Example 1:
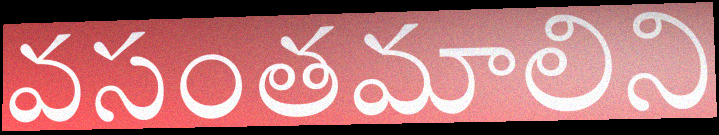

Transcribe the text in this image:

వసంతమాలిని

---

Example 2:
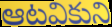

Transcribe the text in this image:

ఆటవికుని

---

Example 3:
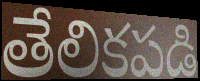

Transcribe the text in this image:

తేలికపడి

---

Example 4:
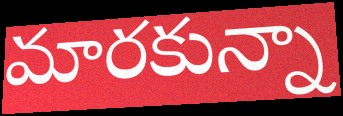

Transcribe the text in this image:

మారకున్నా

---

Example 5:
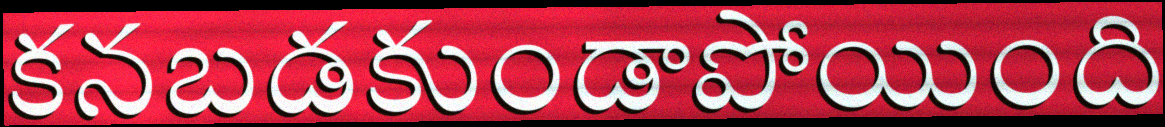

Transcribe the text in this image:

కనబడకుండాపోయింది